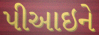
પીઆઇને